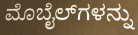
ಮೊಬೈಲ್‌ಗಳನ್ನು